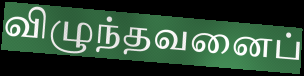
விழுந்தவனைப்